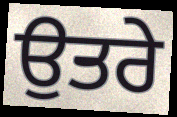
ਉਤਰੇ